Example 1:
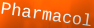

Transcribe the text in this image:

Pharmacol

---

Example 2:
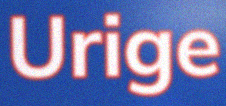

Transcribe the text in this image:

Urige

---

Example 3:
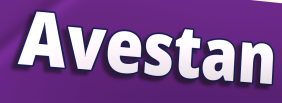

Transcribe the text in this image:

Avestan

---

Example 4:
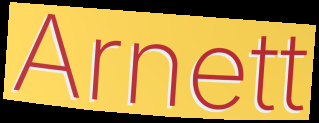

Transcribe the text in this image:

Arnett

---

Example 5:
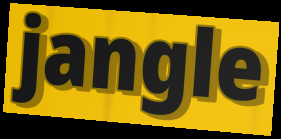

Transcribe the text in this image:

jangle